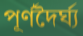
পূৰ্ণদৈৰ্ঘ্য